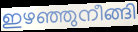
ഇഴഞ്ഞുനീങ്ങി